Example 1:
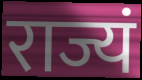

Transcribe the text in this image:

राज्यं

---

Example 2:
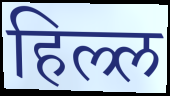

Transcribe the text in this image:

हिल्ल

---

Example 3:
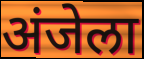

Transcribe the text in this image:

अंजेला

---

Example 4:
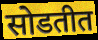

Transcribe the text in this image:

सोडतीत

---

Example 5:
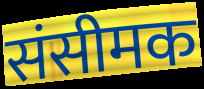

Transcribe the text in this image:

संसीमक